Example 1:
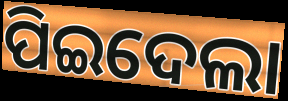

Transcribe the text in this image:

ପିଇଦେଲା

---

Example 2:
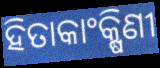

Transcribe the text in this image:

ହିତାକାଂକ୍ଷିଣୀ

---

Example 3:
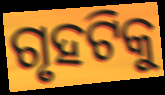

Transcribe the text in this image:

ଗୃହଟିକୁ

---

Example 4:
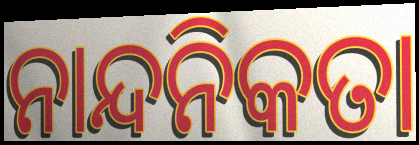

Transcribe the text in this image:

ନାନ୍ଦନିକତା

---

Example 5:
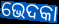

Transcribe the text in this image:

ଭେଦକା